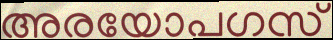
അരയോപഗസ്